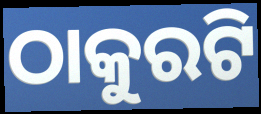
ଠାକୁରଟି